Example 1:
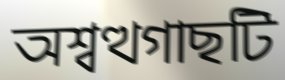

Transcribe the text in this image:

অশ্বত্থগাছটি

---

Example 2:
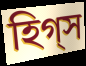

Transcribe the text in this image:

হিগ্স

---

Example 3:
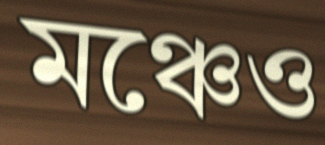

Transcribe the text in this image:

মঞ্চেও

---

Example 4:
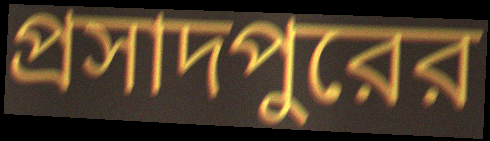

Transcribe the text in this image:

প্রসাদপুরের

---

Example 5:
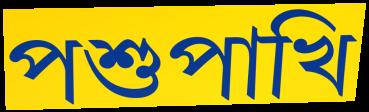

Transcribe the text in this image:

পশুপাখি